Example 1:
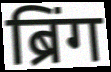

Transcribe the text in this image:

ब्रिंग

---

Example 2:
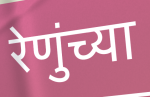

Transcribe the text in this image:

रेणुंच्या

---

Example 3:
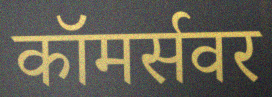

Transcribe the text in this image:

कॉमर्सवर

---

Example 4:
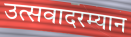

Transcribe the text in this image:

उत्सवादरम्यान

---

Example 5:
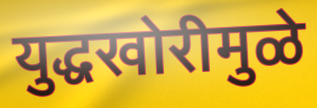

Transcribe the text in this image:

युद्धखोरीमुळे